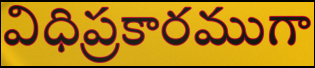
విధిప్రకారముగా